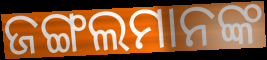
ଜଙ୍ଗଲମାନଙ୍କ